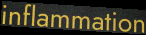
inflammation